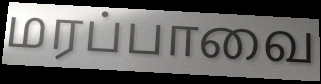
மரப்பாவை